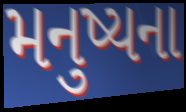
મનુષ્યના